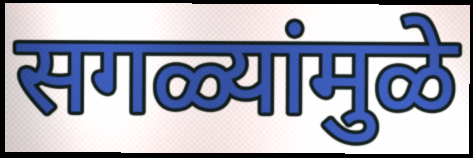
सगळ्यांमुळे